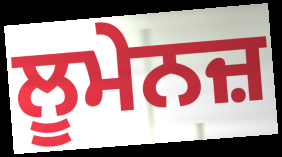
ਲੂਮੇਨਜ਼